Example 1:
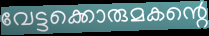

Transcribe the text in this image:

വേട്ടക്കൊരുമകന്റെ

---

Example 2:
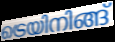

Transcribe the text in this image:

ട്രെയിനിങ്ങ്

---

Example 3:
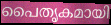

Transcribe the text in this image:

പൈതൃകമായി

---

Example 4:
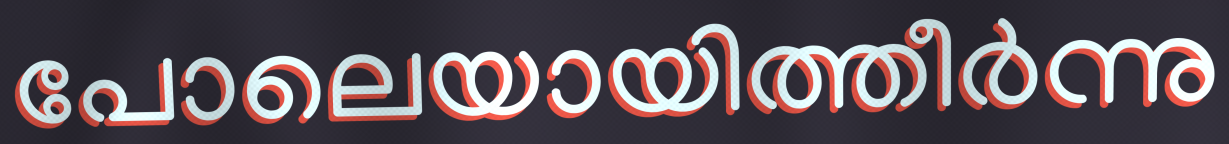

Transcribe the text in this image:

പോലെയായിത്തീർന്നു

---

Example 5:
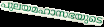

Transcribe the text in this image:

പുലയമഹാസഭയുടെ